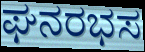
ಘನರಭಸ